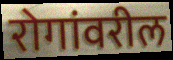
रोगांवरील